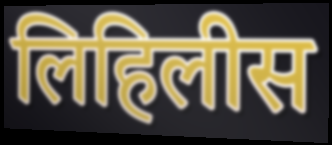
लिहिलीस